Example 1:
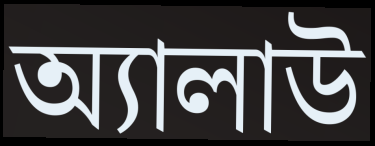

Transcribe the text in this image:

অ্যালাউ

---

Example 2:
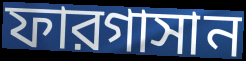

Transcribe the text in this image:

ফারগাসান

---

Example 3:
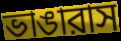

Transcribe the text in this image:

ভাঙারাস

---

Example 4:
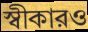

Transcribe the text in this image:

স্বীকারও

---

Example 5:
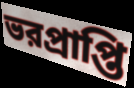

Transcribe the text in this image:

ভরপ্রাপ্তি